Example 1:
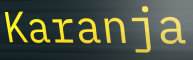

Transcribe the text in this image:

Karanja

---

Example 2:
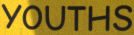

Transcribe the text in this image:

YOUTHS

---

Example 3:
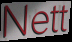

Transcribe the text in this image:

Nett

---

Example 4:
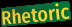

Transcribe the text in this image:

Rhetoric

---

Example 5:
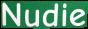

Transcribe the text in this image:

Nudie